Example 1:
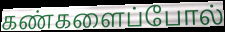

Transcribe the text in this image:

கண்களைப்போல்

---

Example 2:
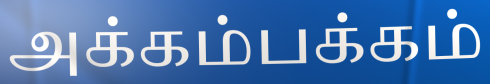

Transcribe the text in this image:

அக்கம்பக்கம்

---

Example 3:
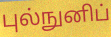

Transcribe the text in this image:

புல்நுனிப்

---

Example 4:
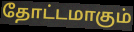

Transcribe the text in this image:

தோட்டமாகும்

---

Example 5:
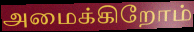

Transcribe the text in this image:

அமைக்கிறோம்